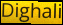
Dighali